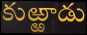
కుఱ్ఱాడు